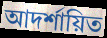
আদর্শায়িত